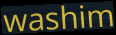
washim